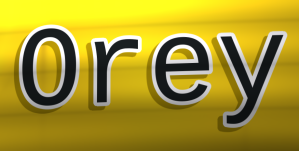
Orey